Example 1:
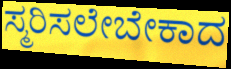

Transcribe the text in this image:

ಸ್ಮರಿಸಲೇಬೇಕಾದ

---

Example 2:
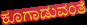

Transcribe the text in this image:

ಕೂಗಾಡುವಂತೆ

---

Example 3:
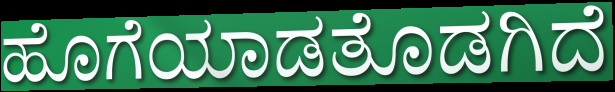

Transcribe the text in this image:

ಹೊಗೆಯಾಡತೊಡಗಿದೆ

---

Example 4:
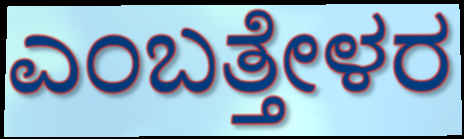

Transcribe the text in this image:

ಎಂಬತ್ತೇಳರ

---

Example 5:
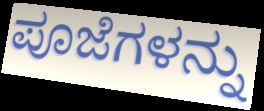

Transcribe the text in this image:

ಪೂಜೆಗಳನ್ನು